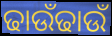
ଢାଉଁଢାଉଁ